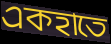
একহাতে